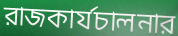
রাজকার্যচালনার